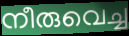
നീരുവെച്ച